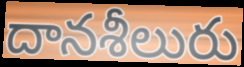
దానశీలురు